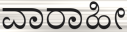
ವಾರಾಹೀ